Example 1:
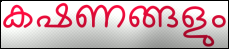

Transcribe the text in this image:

കഷണങ്ങളും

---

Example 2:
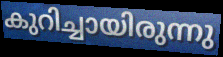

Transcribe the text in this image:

കുറിച്ചായിരുന്നു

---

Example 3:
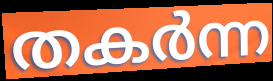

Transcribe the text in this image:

തകർന്ന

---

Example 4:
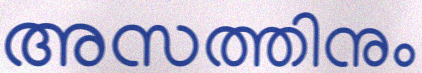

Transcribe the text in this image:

അസത്തിനും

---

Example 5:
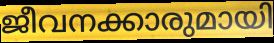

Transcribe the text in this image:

ജീവനക്കാരുമായി